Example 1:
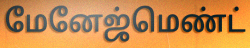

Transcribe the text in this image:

மேனேஜ்மெண்ட்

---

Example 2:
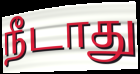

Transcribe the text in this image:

நீடாது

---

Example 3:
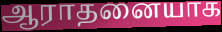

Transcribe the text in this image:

ஆராதனையாக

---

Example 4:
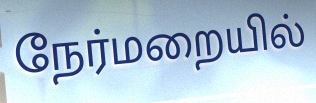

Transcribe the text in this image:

நேர்மறையில்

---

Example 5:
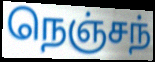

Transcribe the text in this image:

நெஞ்சந்